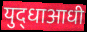
युद्धाआधी